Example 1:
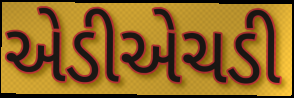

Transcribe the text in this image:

એડીએચડી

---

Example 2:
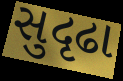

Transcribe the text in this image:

સુદૃઢા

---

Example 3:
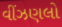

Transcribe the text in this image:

વીંઝણલો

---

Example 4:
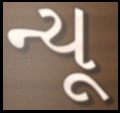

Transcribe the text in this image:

ન્યૂ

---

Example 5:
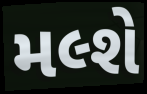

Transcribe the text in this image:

મલ્શે